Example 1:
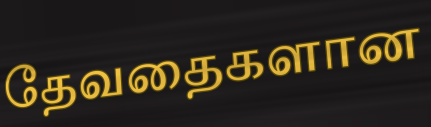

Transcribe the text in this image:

தேவதைகளான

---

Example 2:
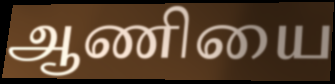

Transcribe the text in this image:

ஆணியை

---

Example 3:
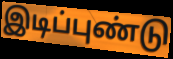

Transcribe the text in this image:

இடிப்புண்டு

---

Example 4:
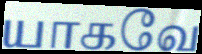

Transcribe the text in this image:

யாகவே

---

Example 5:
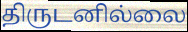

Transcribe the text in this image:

திருடனில்லை